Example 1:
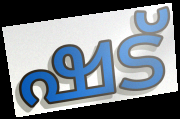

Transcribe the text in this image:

ഷട്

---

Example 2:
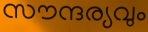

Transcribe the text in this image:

സൗന്ദര്യവും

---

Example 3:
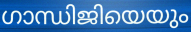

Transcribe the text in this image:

ഗാന്ധിജിയെയും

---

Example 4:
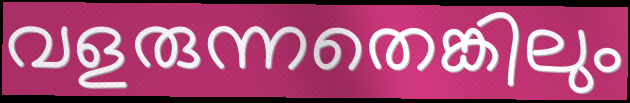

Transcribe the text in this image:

വളരുന്നതെങ്കിലും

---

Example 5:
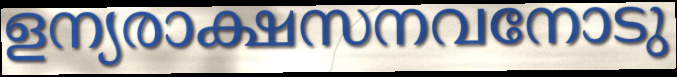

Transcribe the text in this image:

ളന്യരാക്ഷസനവനോടു